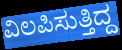
ವಿಲಪಿಸುತ್ತಿದ್ದ